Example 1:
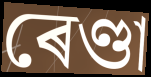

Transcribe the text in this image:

ৰেণ্ডা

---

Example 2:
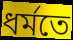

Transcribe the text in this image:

ধৰ্মতে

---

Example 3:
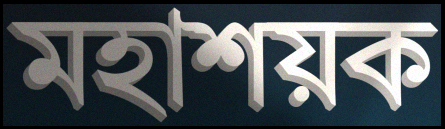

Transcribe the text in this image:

মহাশয়ক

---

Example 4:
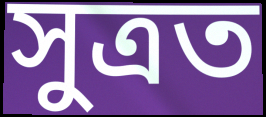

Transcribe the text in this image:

সুত্ৰত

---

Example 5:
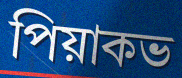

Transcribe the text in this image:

পিয়াকভ